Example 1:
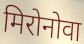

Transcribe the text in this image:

मिरोनोवा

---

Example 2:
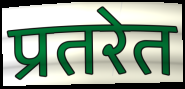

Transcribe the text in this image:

प्रतरेत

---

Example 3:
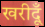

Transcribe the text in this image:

खरीदूँ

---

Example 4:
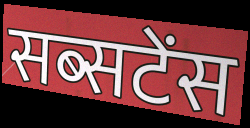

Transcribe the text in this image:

सब्सटेंस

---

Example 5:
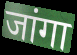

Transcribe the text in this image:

जांगा